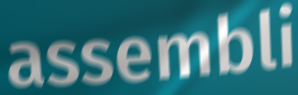
assembli